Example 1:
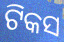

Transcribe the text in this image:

ଟିକସ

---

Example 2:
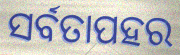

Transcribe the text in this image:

ସର୍ବତାପହର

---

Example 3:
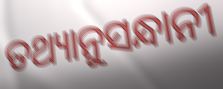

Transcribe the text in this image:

ତଥ୍ୟାନୁସନ୍ଧାନୀ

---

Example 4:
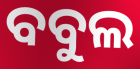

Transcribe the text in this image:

ବବୁଲ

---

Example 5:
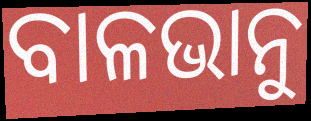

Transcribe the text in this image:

ବାଳଭାନୁ